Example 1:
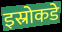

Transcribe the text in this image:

इस्रोकडे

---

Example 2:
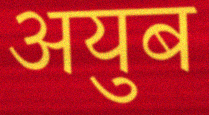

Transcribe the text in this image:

अयुब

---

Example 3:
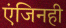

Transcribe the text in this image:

एंजिनही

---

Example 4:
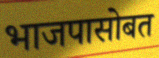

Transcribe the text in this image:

भाजपासोबत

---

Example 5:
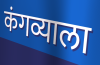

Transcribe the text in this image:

कंगव्याला